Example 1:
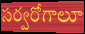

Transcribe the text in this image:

సర్వరోగాలూ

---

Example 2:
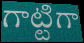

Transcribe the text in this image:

గాట్టిగా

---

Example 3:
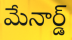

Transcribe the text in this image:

మేనార్డ్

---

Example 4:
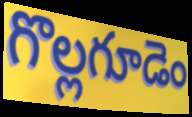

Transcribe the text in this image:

గొల్లగూడెం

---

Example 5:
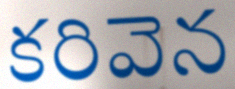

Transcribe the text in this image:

కరివెన